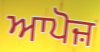
ਆਪੋਜ਼